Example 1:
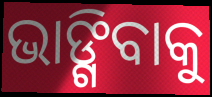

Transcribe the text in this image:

ଭାଙ୍ଗିବାକୁ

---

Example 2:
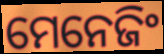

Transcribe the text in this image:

ମେନେଜିଂ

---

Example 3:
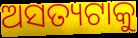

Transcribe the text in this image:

ଅସତ୍ୟଟାକୁ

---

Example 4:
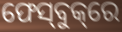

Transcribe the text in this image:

ଫେସ୍‌ବୁକ୍‌ରେ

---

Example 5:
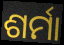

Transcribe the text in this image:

ଶର୍ମା